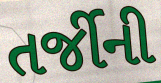
તર્જીની